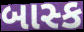
બાસ્ક